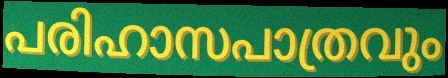
പരിഹാസപാത്രവും